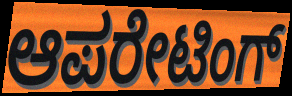
ಆಪರೇಟಿಂಗ್